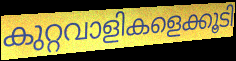
കുറ്റവാളികളെക്കൂടി